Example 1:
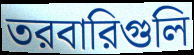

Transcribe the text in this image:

তরবারিগুলি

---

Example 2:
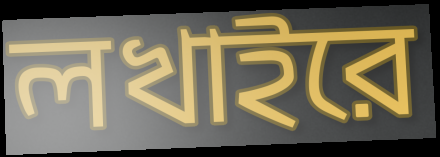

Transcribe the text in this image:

লখাইরে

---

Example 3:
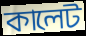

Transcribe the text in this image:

কালেট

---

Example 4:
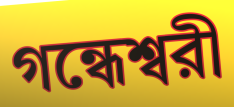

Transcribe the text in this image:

গন্ধেশ্বরী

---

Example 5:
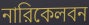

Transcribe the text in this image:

নারিকেলবন